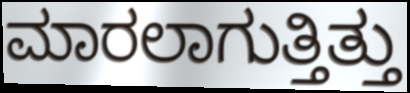
ಮಾರಲಾಗುತ್ತಿತ್ತು